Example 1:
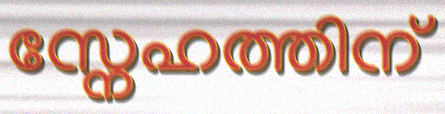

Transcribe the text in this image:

സ്നേഹത്തിന്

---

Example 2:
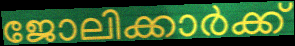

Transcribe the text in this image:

ജോലിക്കാർക്ക്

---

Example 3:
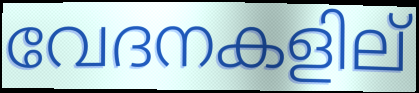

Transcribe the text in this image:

വേദനകളില്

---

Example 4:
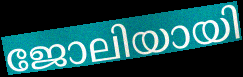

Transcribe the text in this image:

ജോലിയായി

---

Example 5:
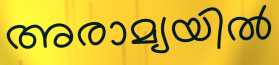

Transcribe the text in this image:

അരാമ്യയിൽ